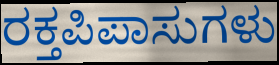
ರಕ್ತಪಿಪಾಸುಗಳು